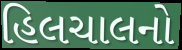
હિલચાલનો